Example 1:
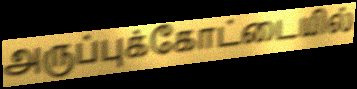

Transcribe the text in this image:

அருப்புக்கோட்டையில்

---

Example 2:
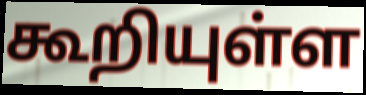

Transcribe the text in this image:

கூறியுள்ள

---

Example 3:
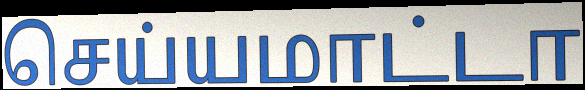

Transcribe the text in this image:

செய்யமாட்டா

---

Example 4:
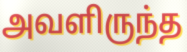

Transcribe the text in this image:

அவளிருந்த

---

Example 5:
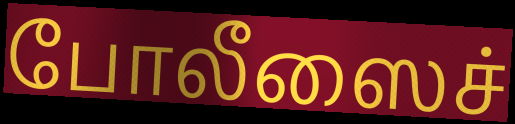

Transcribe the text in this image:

போலீஸைச்